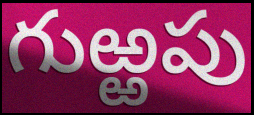
గుఱ్ఱపు